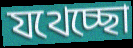
যথেচ্ছো